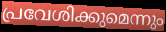
പ്രവേശിക്കുമെന്നും